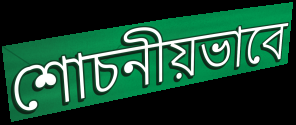
শোচনীয়ভাবে